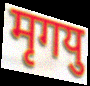
मृगयु